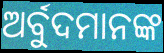
ଅର୍ବୁଦମାନଙ୍କ